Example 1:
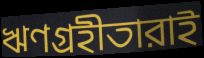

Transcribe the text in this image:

ঋণগ্রহীতারাই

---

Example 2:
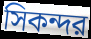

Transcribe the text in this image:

সিকন্দর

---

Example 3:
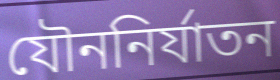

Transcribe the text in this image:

যৌননির্যাতন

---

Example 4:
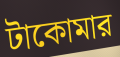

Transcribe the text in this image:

টাকোমার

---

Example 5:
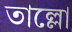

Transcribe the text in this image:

তাল্লো